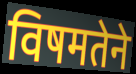
विषमतेने